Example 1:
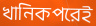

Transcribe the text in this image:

খানিকপরেই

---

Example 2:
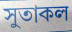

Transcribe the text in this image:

সুতাকল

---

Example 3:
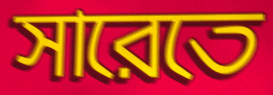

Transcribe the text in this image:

সারেতে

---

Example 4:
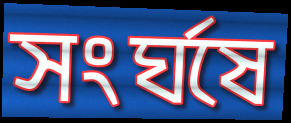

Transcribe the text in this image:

সংর্ঘষে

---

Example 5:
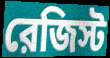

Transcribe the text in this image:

রেজিস্ট